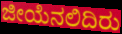
ಜೀಯೆನಲಿದಿರು